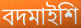
বদমাইশি